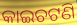
କାଇଚଟଣି